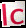
Ic